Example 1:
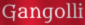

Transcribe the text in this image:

Gangolli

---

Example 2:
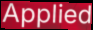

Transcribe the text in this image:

Applied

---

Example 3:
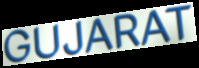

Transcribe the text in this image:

GUJARAT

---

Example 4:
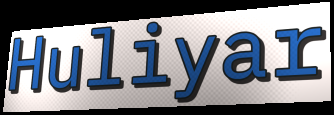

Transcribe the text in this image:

Huliyar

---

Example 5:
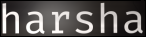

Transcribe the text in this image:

harsha